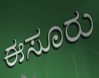
ಈಸೂರು